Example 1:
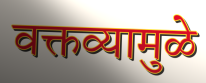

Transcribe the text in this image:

वक्तव्यामुळे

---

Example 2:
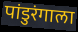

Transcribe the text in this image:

पांडुरंगाला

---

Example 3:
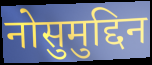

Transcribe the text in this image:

नोसुमुद्दिन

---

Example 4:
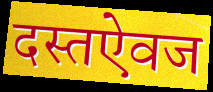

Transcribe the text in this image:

दस्तऐवज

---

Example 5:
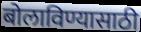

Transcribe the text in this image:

बोलाविण्यासाठी